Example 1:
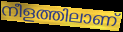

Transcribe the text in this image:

നീളത്തിലാണ്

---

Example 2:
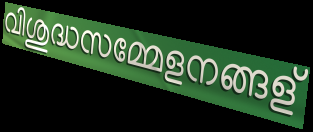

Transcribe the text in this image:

വിശുദ്ധസമ്മേളനങ്ങള്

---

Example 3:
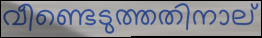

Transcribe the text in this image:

വീണ്ടെടുത്തതിനാല്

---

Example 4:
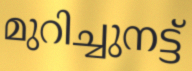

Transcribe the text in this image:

മുറിച്ചുനട്ട്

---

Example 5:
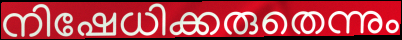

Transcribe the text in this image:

നിഷേധിക്കരുതെന്നും